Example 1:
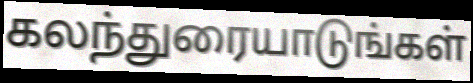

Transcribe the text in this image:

கலந்துரையாடுங்கள்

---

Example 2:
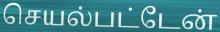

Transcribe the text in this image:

செயல்பட்டேன்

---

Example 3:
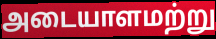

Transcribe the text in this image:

அடையாளமற்று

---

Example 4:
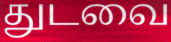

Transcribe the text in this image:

துடவை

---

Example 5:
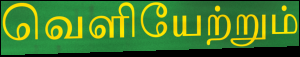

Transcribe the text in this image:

வெளியேற்றும்